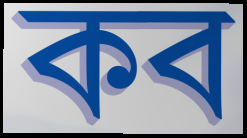
কব